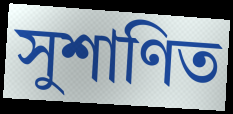
সুশাণিত